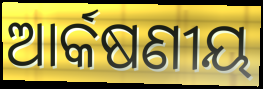
ଆର୍କଷଣୀୟ